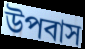
উপবাস